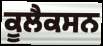
ਕੂਲੈਕਸਨ